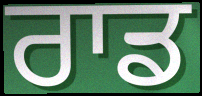
ਰਾਡ